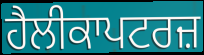
ਹੈਲੀਕਾਪਟਰਜ਼